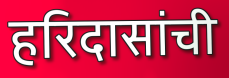
हरिदासांची